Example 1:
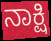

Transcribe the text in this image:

ನಾಕ್ಷಿ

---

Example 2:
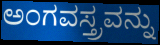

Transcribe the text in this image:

ಅಂಗವಸ್ತ್ರವನ್ನು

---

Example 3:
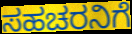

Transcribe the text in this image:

ಸಹಚರನಿಗೆ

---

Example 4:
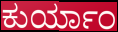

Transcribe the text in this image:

ಕುರ್ಯಾಂ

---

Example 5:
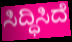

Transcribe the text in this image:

ಸಿದ್ಧಿಸಿದೆ